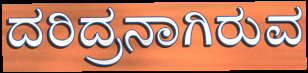
ದರಿದ್ರನಾಗಿರುವ